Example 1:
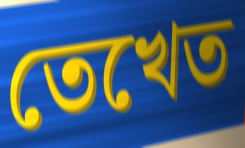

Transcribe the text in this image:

তেখেত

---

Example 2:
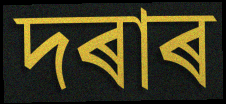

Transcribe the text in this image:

দৰাৰ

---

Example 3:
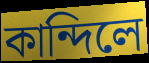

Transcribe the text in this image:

কান্দিলে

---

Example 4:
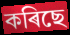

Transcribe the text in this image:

কৰিছে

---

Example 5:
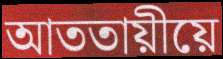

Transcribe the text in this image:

আততায়ীয়ে